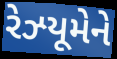
રેઝ્યૂમેને